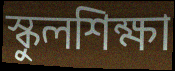
স্কুলশিক্ষা